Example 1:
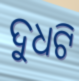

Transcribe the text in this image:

ଦୁଧଟି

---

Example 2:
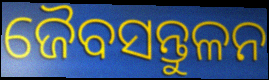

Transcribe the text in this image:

ଜୈବସନ୍ତୁଳନ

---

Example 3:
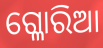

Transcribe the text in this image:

ଗ୍ଳୋରିଆ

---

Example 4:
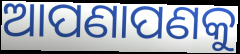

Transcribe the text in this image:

ଆପଣାପଣକୁ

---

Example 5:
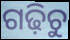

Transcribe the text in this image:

ଗଢ଼ିଚୁ